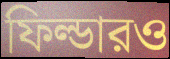
ফিল্ডারও